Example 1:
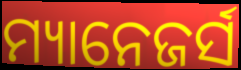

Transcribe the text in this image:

ମ୍ୟାନେଜର୍ସ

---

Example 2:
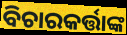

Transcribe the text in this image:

ବିଚାରକର୍ତ୍ତାଙ୍କ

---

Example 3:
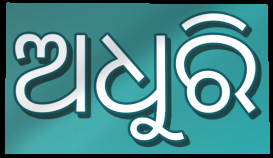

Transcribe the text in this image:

ଅଧୁରି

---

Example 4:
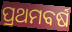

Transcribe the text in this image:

ପ୍ରଥମବର୍ଷ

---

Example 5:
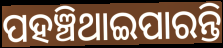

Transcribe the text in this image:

ପହଞ୍ଚିଥାଇପାରନ୍ତି